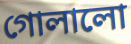
গোলালো